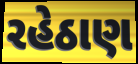
રહેઠાણ